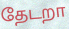
தேடறா